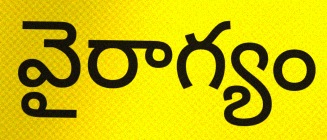
వైరాగ్యం